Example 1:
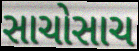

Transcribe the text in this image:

સાચોસાચ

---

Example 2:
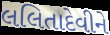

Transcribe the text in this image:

લલિતાદેવીને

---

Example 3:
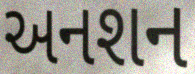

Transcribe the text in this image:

અનશન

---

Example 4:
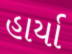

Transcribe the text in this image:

હાર્યા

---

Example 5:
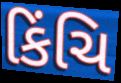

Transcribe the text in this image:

કિંચિ